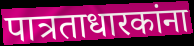
पात्रताधारकांना